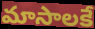
మాసాలకే